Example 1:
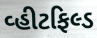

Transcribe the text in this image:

વ્હીટફિલ્ડ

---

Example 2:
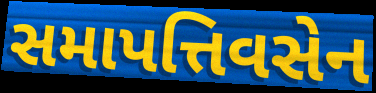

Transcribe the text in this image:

સમાપત્તિવસેન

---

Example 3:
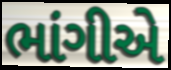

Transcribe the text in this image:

ભાંગીએ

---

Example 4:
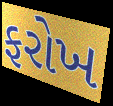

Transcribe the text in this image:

ફરોખ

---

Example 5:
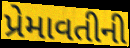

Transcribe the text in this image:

પ્રેમાવતીની